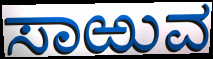
ಸಾಱುವ